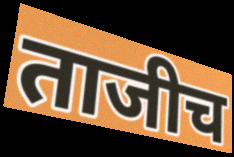
ताजीच